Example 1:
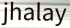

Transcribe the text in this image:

jhalay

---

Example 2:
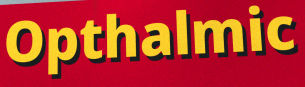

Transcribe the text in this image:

Opthalmic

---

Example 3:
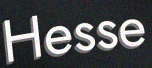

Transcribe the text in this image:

Hesse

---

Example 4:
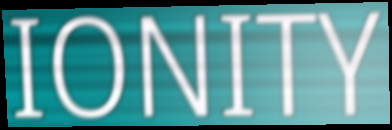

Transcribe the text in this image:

IONITY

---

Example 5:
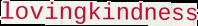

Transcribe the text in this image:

lovingkindness